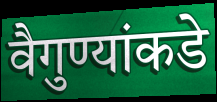
वैगुण्यांकडे